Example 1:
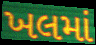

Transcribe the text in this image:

ખલમાં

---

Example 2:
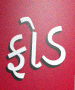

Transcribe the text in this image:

ફોડ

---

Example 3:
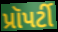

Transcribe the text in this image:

પ્રૉપર્ટી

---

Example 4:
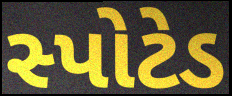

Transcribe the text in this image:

સ્પોટેડ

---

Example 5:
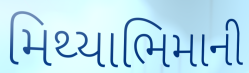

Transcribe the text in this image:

મિથ્યાભિમાની